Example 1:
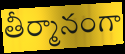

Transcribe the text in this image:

తీర్మానంగా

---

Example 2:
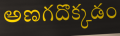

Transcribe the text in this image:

అణగదొక్కడం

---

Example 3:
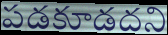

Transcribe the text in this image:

పడకూడదని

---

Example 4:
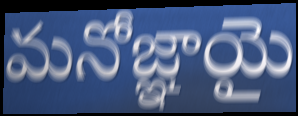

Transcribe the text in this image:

మనోజ్ఞాయై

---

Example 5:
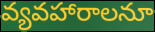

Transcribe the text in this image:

వ్యవహారాలనూ